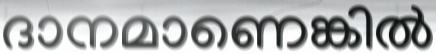
ദാനമാണെങ്കിൽ